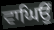
ਵਾਘਿਉਂ